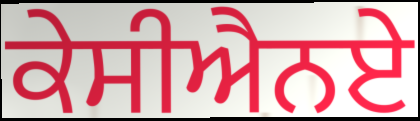
ਕੇਸੀਐਨਏ